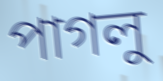
পাগলু